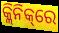
କ୍ଲିନିକ୍‌ରେ